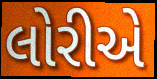
લોરીએ